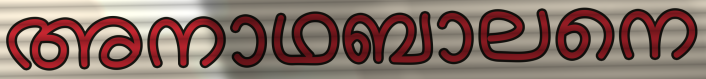
അനാഥബാലനെ